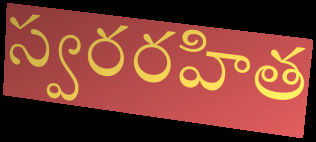
స్వరరహిత